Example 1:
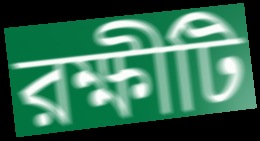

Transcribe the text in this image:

রক্ষীটি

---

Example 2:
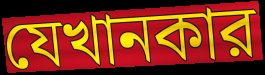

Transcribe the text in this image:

যেখানকার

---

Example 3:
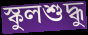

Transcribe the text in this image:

স্কুলশুদ্ধু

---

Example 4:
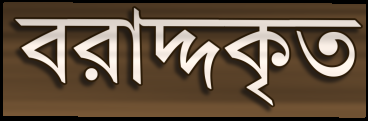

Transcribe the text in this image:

বরাদ্দকৃত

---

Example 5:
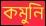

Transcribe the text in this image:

কমুনি